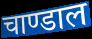
चाण्डाल